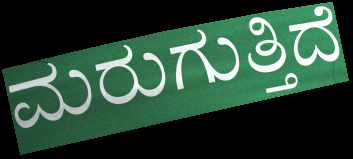
ಮರುಗುತ್ತಿದೆ